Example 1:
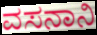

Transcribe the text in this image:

ವಸನಾನಿ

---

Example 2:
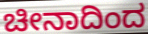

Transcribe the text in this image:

ಚೀನಾದಿಂದ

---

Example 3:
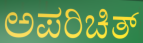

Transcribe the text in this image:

ಅಪರಿಚಿತ್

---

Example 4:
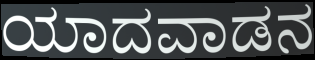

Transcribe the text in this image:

ಯಾದವಾಡನ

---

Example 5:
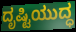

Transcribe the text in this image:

ದೃಷ್ಟಿಯುದ್ಧ